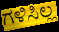
ಗಳಿಸಿಲ್ಲ